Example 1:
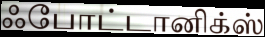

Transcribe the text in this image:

ஃபோட்டானிக்ஸ்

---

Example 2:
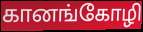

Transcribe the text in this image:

கானங்கோழி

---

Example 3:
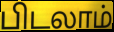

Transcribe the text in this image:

பிடலாம்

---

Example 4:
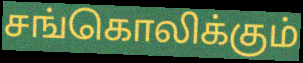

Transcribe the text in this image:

சங்கொலிக்கும்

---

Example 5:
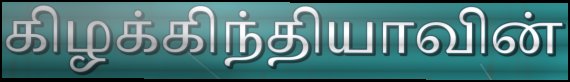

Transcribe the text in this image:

கிழக்கிந்தியாவின்